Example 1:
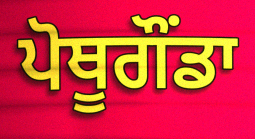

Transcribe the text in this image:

ਪੋਥੂਗੌਂਡਾ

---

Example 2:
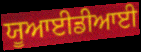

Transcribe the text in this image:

ਯੂਆਈਡੀਆਈ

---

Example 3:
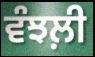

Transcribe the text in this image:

ਵੰਝਲ਼ੀ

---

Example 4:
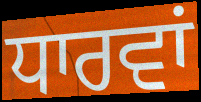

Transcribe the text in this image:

ਧਾਰਵਾਂ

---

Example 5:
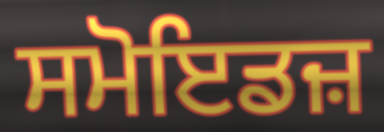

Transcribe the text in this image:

ਸਮੋਇਡਜ਼